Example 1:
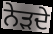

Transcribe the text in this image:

ਨੇੜਦੇ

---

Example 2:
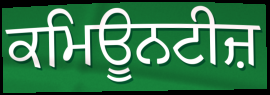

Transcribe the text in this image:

ਕਮਿਊਨਟੀਜ਼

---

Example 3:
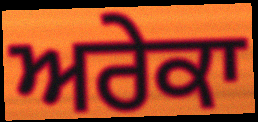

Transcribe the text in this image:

ਅਰੇਕਾ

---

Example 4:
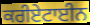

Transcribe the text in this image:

ਕਰੀਏਟਾਈਨ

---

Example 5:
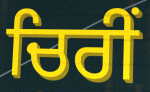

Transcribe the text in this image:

ਚਿਰੀਂ